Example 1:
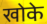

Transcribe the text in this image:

खोके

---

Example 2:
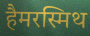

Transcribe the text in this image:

हैमरस्मिथ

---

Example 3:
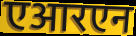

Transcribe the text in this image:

एआरएन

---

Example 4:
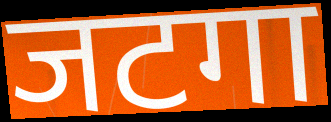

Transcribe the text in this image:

जटगा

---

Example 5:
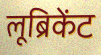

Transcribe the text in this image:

लूब्रिकेंट